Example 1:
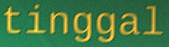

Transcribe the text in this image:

tinggal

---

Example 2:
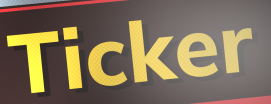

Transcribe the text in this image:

Ticker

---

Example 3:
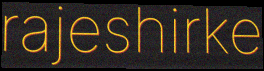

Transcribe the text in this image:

rajeshirke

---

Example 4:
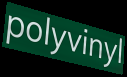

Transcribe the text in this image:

polyvinyl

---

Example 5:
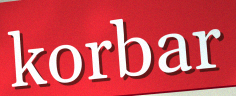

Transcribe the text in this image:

korbar